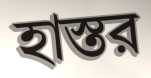
হাস্তর